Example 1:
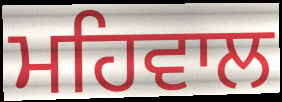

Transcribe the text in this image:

ਮਹਿਵਾਲ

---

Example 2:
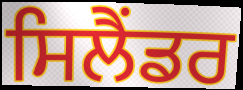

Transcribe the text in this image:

ਸਿਲੈਂਡਰ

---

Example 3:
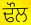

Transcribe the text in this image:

ਢੌਲ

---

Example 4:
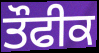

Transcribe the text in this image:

ਤੌਫੀਕ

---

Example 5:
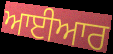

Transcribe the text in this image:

ਆਈਆਰ